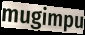
mugimpu